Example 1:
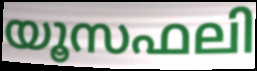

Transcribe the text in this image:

യൂസഫലി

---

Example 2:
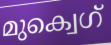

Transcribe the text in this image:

മുക്വെഗ്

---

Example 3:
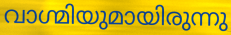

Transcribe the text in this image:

വാഗ്മിയുമായിരുന്നു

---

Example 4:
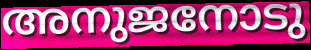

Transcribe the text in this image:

അനുജനോടു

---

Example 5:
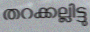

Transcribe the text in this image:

തറക്കല്ലിട്ടു